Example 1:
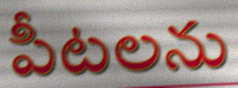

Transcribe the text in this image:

పీటలను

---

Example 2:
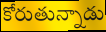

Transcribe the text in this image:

కోరుతున్నాడు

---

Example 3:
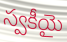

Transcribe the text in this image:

స్వకీయై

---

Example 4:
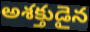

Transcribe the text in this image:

అశక్తుడైన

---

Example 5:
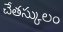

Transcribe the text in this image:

చేతస్కులం